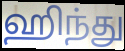
ஹிந்து